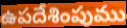
ఉపదేశింపుము